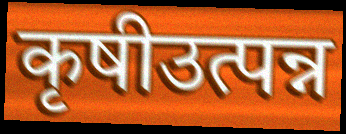
कृषीउत्पन्न